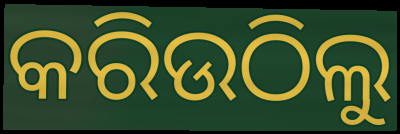
କରିଉଠିଲୁ